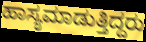
ಹಾಸ್ಯಮಾಡುತ್ತಿದ್ದರು